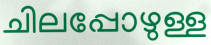
ചിലപ്പോഴുള്ള